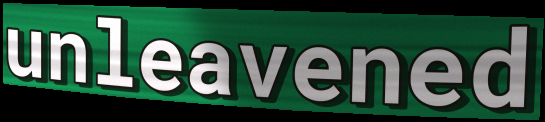
unleavened